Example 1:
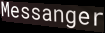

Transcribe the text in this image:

Messanger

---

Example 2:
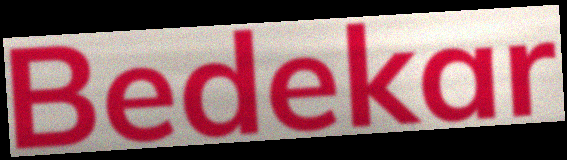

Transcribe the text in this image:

Bedekar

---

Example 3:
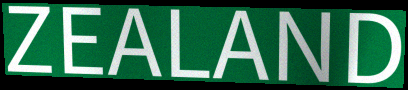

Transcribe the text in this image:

ZEALAND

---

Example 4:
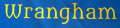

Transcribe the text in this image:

Wrangham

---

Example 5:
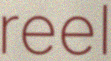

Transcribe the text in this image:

reel